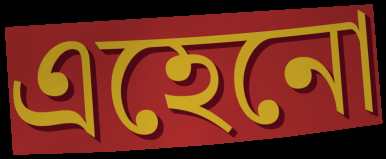
এহেনো